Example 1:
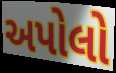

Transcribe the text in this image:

અપોલો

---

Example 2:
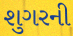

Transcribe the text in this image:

શુગરની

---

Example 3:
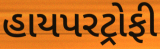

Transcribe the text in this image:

હાયપરટ્રોફી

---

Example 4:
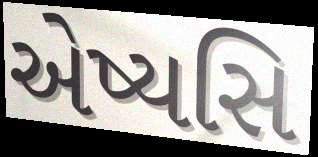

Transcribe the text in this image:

એષ્યસિ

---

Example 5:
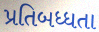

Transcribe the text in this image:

પ્રતિબધ્ધતા